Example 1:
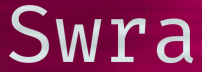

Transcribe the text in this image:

Swra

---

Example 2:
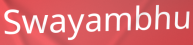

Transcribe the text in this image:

Swayambhu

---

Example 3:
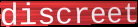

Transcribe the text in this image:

discreet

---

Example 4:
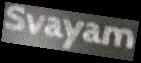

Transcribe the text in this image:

Svayam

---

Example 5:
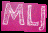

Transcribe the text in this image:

MLJ